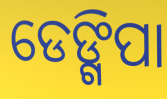
ଡେଙ୍ଗିପା